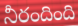
నీరందింది